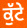
ਕੁੱਟੇ